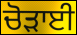
ਚੋੜਾਈ